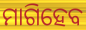
ମାଗିହେବ